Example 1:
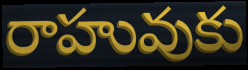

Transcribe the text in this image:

రాహువుకు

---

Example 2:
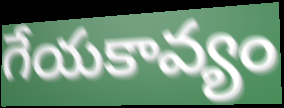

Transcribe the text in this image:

గేయకావ్యం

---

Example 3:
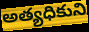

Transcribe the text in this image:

అత్యధికుని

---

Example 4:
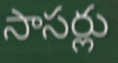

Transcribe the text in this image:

సాసర్లు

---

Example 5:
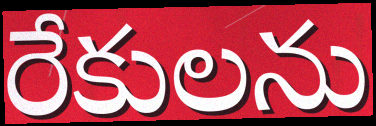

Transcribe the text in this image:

రేకులను